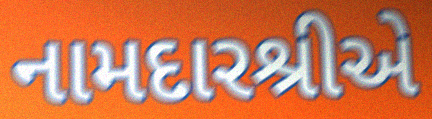
નામદારશ્રીએ